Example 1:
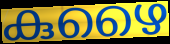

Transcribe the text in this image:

കുഴൈ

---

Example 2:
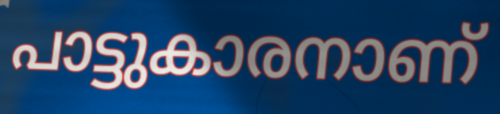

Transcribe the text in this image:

പാട്ടുകാരനാണ്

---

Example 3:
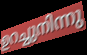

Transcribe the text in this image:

ഉറച്ചുനിന്നു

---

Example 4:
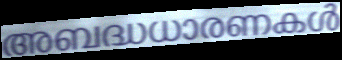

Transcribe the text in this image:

അബദ്ധധാരണകൾ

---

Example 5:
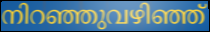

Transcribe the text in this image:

നിറഞ്ഞുവഴിഞ്ഞ്